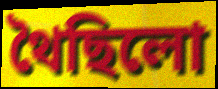
থৈছিলো